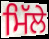
ਮਿੱਲੇ